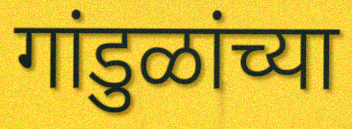
गांडुळांच्या